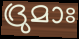
ദ്രുമാഃ